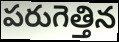
పరుగెత్తిన